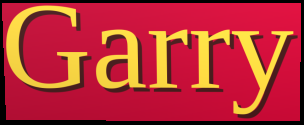
Garry